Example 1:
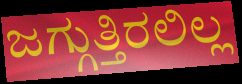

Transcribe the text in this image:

ಜಗ್ಗುತ್ತಿರಲಿಲ್ಲ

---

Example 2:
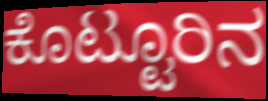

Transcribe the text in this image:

ಕೊಟ್ಟೂರಿನ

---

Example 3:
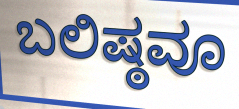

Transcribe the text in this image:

ಬಲಿಷ್ಠವೂ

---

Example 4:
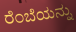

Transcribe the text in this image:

ರೆಂಬೆಯನ್ನು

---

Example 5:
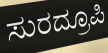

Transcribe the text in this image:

ಸುರದ್ರೂಪಿ